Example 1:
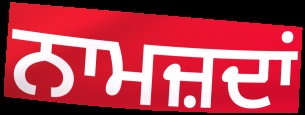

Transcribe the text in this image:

ਨਾਮਜ਼ਦਾਂ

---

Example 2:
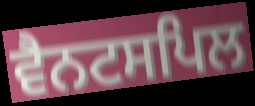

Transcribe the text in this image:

ਵੈਨਟਸਪਿਲ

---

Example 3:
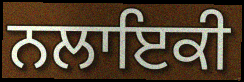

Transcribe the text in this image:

ਨਲਾਇਕੀ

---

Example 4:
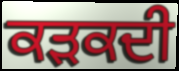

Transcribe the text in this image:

ਕੜਕਦੀ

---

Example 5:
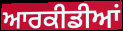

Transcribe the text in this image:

ਆਰਕੀਡੀਆਂ